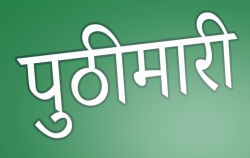
पुठीमारी